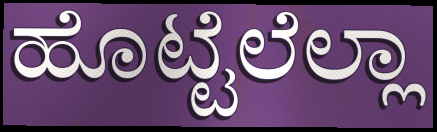
ಹೊಟ್ಟೆಲೆಲ್ಲಾ